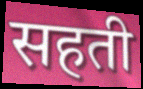
सहती